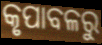
କୃପାବଳରୁ